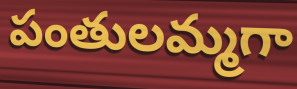
పంతులమ్మగా